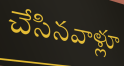
చేసినవాళ్లూ